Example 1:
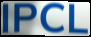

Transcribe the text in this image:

IPCL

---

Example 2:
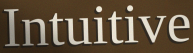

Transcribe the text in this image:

Intuitive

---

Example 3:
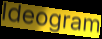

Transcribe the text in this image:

Ideogram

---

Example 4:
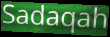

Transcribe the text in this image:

Sadaqah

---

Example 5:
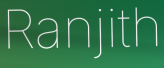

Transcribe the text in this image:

Ranjith